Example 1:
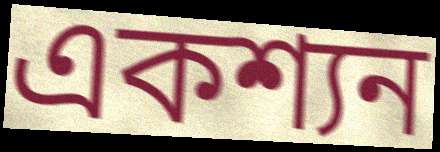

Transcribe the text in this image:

একশ্যন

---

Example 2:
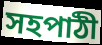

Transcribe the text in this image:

সহপাঠী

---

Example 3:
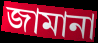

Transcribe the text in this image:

জামানা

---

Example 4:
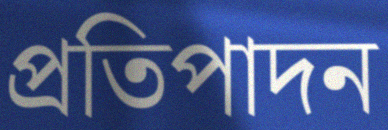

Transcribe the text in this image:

প্ৰতিপাদন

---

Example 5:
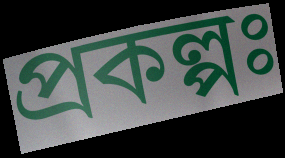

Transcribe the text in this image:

প্ৰকল্পঃ